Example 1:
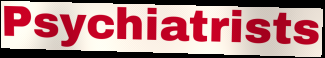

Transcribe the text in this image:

Psychiatrists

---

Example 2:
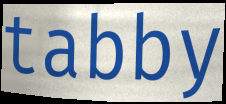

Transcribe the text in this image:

tabby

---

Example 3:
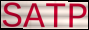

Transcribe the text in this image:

SATP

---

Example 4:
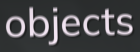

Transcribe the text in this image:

objects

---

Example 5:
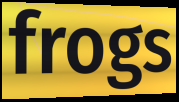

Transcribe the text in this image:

frogs